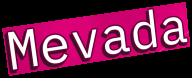
Mevada